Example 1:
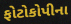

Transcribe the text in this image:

ફોટોકોપીના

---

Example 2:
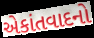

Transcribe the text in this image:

એકાંતવાદનો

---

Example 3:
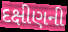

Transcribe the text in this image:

દક્ષીણની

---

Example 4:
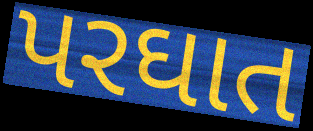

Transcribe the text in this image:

પરઘાત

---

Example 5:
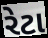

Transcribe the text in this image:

રેટા